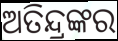
ଅତିନ୍ଦ୍ରଙ୍କର